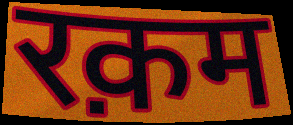
रक़म